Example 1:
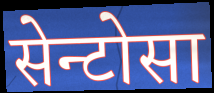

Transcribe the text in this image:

सेन्टोसा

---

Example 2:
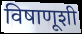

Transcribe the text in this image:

विषाणूशी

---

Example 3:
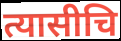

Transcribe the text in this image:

त्यासीचि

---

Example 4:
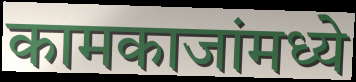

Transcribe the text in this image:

कामकाजांमध्ये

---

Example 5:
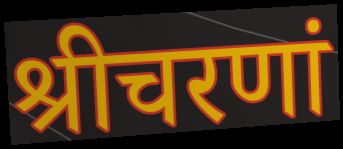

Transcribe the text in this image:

श्रीचरणां